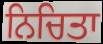
ਨਿਚਿਤਾ